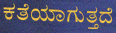
ಕತೆಯಾಗುತ್ತದೆ